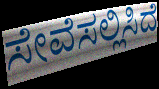
ಸೇವೆಸಲ್ಲಿಸಿದೆ